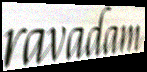
ravadam